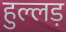
हुल्लड़